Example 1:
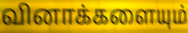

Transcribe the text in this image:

வினாக்களையும்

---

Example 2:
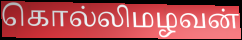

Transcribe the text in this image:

கொல்லிமழவன்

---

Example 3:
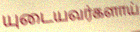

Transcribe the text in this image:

யுடையவர்களாய்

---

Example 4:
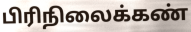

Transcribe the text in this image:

பிரிநிலைக்கண்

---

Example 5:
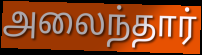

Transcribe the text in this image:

அலைந்தார்